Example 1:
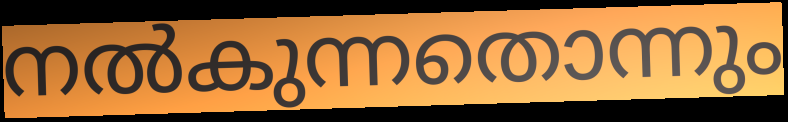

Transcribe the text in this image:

നൽകുന്നതൊന്നും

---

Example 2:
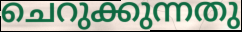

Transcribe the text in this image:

ചെറുക്കുന്നതു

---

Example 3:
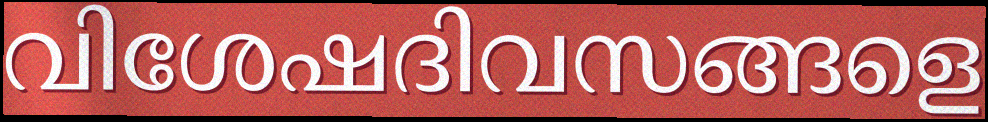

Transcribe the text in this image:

വിശേഷദിവസങ്ങളെ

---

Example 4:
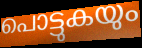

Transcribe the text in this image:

പൊട്ടുകയും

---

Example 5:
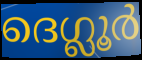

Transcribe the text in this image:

ദെഗ്ലൂർ